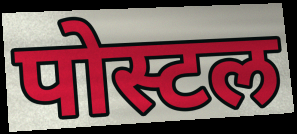
पोस्टल